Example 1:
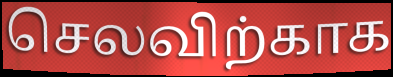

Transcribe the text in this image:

செலவிற்காக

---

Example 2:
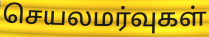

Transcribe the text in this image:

செயலமர்வுகள்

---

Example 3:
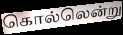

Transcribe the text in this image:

கொல்லென்று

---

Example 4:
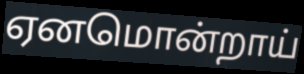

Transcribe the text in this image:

ஏனமொன்றாய்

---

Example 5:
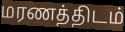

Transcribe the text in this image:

மரணத்திடம்